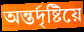
অন্তৰ্দৃষ্টিয়ে